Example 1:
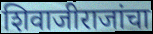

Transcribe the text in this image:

शिवाजीराजांचा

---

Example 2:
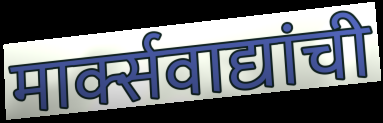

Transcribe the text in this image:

मार्क्सवाद्यांची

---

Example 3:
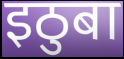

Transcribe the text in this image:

इठुबा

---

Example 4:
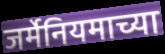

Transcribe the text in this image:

जर्मेनियमाच्या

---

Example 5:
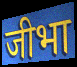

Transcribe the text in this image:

जीभा